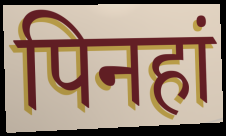
पिनहां